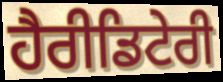
ਹੈਰੀਡਿਟੇਰੀ